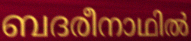
ബദരീനാഥിൽ